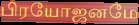
பிரயோஜனமே